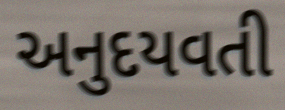
અનુદયવતી